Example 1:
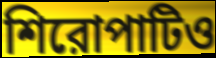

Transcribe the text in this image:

শিরোপাটিও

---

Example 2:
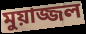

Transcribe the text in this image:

মুয়াজ্জল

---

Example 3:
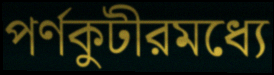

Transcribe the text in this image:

পর্ণকুটীরমধ্যে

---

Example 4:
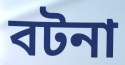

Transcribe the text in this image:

বটনা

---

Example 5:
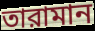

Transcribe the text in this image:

তারামান